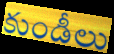
కుండీలు